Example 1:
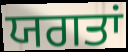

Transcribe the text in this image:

ਯਗਤਾਂ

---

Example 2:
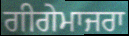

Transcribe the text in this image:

ਗੀਗੇਮਾਜਰਾ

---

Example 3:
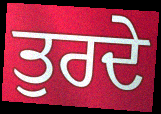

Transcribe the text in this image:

ਤੁਰਦੇ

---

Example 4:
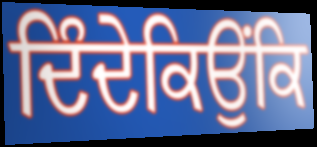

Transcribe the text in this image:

ਦਿੰਦੇਕਿਉਂਕਿ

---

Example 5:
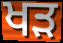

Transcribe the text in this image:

ਖੜ